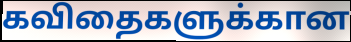
கவிதைகளுக்கான